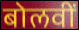
बोलवीं